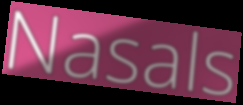
Nasals